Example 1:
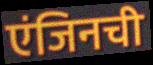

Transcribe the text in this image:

एंजिनची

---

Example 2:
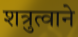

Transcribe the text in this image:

शत्रुत्वाने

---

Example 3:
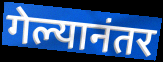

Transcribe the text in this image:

गेल्यानंतर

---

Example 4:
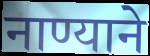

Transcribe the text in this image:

नाण्याने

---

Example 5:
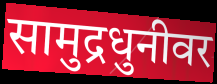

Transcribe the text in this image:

सामुद्रधुनीवर